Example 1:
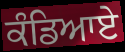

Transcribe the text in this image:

ਕੰਡਿਆਏ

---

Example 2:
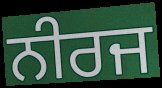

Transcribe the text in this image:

ਨੀਰਜ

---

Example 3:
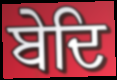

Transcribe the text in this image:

ਬੇਦਿ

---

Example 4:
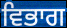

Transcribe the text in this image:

ਵਿਭਾਗ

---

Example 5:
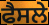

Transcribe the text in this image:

ਫੈਸਲੇ